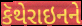
કૅથેરાઇનને